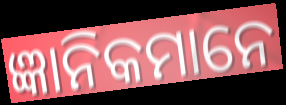
ଜ୍ଞାନିକମାନେ